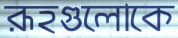
রূহগুলোকে